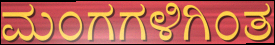
ಮಂಗಗಳಿಗಿಂತ